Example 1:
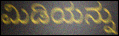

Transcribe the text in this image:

ಮಿಡಿಯನ್ನು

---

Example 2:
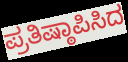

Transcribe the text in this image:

ಪ್ರತಿಷ್ಠಾಪಿಸಿದ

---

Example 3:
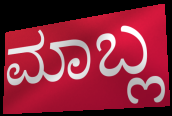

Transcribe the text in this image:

ಮಾಬ್ಲ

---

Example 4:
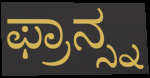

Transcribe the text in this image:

ಫ್ರಾನ್ಸ್ನ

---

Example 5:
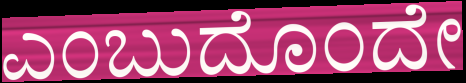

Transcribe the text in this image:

ಎಂಬುದೊಂದೇ